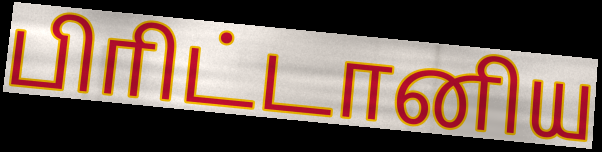
பிரிட்டானிய